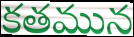
కతమున